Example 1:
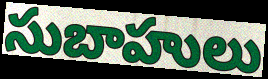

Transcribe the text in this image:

సుబాహులు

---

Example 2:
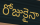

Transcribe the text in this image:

రోజుకైనా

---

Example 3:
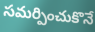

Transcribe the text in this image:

సమర్పించుకొనే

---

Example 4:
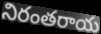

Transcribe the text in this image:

నిరంతరాయ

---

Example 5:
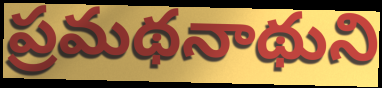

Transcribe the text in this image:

ప్రమథనాథుని